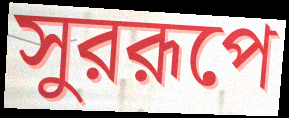
সুররূপে